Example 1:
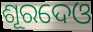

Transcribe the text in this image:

ଶୂରଦେଓ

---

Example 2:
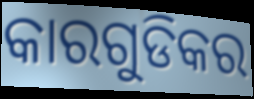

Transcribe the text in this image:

କାରଗୁଡିକର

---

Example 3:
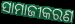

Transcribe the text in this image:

ସାମାଜୀକରଣ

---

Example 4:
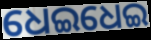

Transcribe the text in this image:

ଧେଇଧେଇ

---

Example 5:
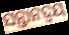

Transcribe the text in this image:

ସନ୍ତାନଦ୍ୱୟ